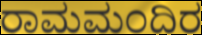
ರಾಮಮಂದಿರ